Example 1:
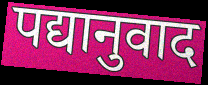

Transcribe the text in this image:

पद्यानुवाद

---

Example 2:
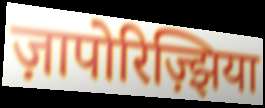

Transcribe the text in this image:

ज़ापोरिज़्झिया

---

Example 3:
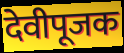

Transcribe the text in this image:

देवीपूजक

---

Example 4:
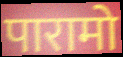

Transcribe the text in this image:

पारामो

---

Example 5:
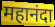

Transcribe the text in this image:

महानंदा